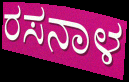
ರಸನಾಳ